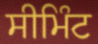
ਸੀਮਿੰਟ